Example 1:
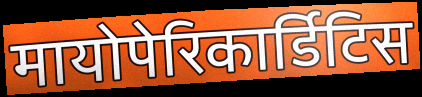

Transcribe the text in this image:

मायोपेरिकार्डिटिस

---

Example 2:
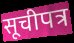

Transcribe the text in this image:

सूचीपत्र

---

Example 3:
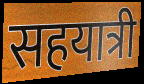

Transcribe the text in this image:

सहयात्री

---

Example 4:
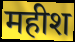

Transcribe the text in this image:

महीश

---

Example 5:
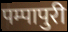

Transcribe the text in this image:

पम्पापुरी